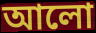
আলো